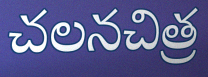
చలనచిత్ర